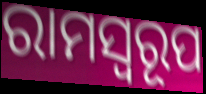
ରାମସ୍ୱରୂପ